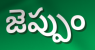
జెప్పుం